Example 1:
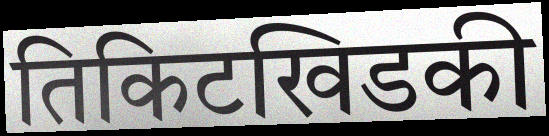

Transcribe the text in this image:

तिकिटखिडकी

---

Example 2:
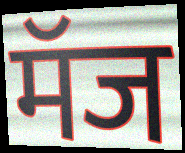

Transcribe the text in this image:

मॅज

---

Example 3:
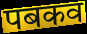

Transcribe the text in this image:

पबकव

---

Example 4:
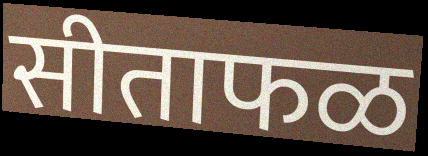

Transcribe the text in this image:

सीताफळ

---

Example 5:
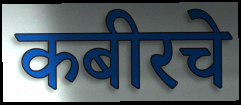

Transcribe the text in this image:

कबीरचे